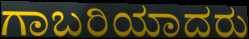
ಗಾಬರಿಯಾದರು